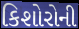
કિશોરોની